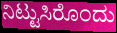
ನಿಟ್ಟುಸಿರೊಂದು